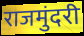
राजमुंदरी